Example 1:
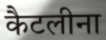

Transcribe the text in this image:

कैटलीना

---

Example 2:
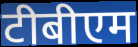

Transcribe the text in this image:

टीबीएम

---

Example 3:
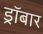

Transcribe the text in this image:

ड्रॉबार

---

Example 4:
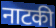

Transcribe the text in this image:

नाटकी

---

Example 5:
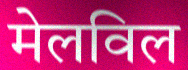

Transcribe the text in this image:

मेलविल